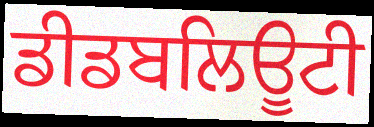
ਡੀਡਬਲਿਊਟੀ